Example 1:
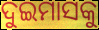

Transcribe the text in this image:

ଦୁଇମାସକୁ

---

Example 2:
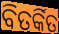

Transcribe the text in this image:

ବିତର୍କିତ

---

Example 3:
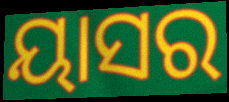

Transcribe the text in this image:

ୟାସର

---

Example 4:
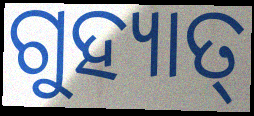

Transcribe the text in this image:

ଗୁହ୍ୟାତ୍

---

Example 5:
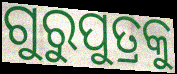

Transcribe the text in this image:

ଗୁରୁପୁତ୍ରକୁ